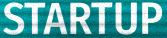
STARTUP